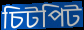
চিটপিট